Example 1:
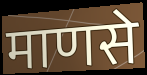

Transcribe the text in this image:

माणसे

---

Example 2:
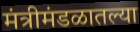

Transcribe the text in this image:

मंत्रीमंडळातल्या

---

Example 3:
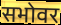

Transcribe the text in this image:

सभोवर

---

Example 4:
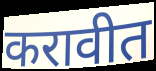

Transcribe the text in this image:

करावीत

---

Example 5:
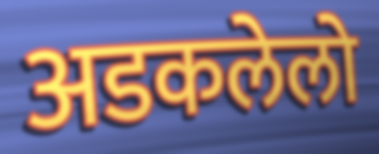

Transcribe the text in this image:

अडकलेलो